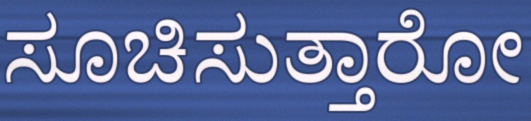
ಸೂಚಿಸುತ್ತಾರೋ